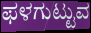
ಫಳಗುಟ್ಟುವ